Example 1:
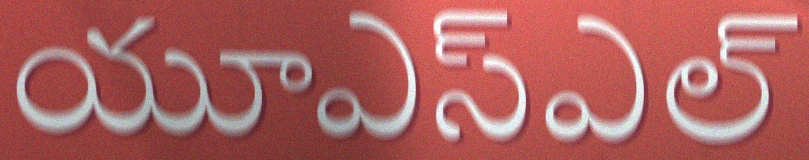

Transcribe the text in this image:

యూఎస్ఎల్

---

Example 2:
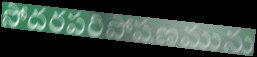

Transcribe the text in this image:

సోదరపరిపోషణమును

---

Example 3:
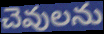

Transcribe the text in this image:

చెవులను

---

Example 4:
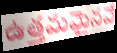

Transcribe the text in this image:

ఉత్తమమైనవే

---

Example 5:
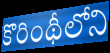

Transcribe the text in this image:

కొరింథీలోని